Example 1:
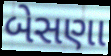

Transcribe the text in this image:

બેસણા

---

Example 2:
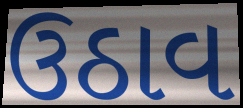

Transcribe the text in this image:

ઉઠાવ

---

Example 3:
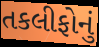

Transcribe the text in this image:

તકલીફોનું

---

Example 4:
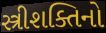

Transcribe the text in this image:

સ્ત્રીશક્તિનો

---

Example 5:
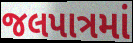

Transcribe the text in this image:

જલપાત્રમાં